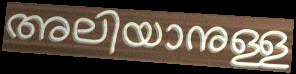
അലിയാനുള്ള